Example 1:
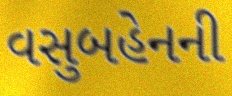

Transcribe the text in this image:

વસુબહેનની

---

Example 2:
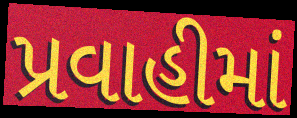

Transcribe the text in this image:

પ્રવાહીમાં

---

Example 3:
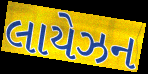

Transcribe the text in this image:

લાયેઝન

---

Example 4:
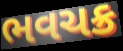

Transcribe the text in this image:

ભવચક્ર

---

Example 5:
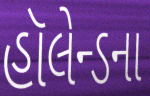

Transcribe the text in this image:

હૉલેન્ડના